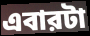
এবারটা